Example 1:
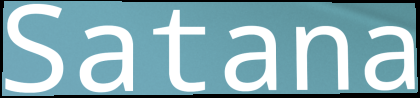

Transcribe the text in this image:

Satana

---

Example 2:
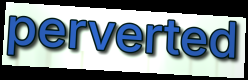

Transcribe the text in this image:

perverted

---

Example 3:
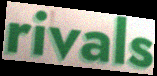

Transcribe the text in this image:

rivals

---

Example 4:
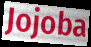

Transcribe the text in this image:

Jojoba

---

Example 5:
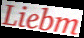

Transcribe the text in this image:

Liebm